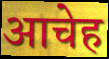
आचेह